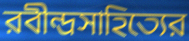
রবীন্দ্রসাহিত্যের